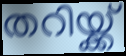
തറിയ്ക്ക്